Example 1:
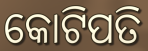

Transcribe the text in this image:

କୋଟିପତି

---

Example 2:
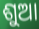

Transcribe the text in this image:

ଶୁଆ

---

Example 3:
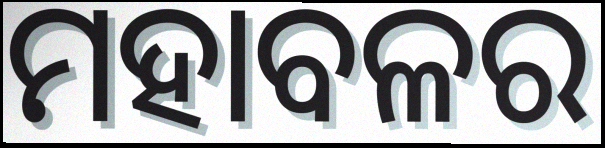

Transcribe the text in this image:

ମହାବଳର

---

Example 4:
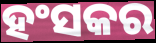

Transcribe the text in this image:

ହଂସକର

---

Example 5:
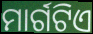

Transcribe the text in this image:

ମାର୍ଗଟିଏ